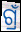
ଗ୍ରଁ